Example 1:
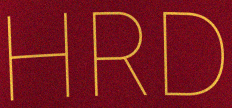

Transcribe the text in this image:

HRD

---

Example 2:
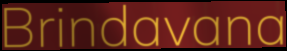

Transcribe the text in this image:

Brindavana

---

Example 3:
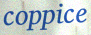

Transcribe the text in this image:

coppice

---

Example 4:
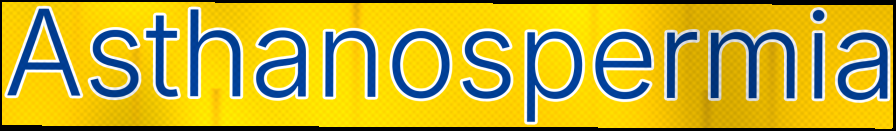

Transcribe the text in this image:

Asthanospermia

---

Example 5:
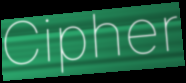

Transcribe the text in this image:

Cipher